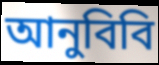
আনুবিবি